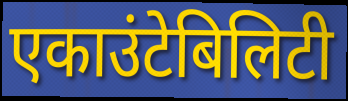
एकाउंटेबिलिटी